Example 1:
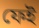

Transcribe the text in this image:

ফেই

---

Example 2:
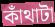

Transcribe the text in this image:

কাঁথাটা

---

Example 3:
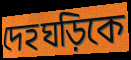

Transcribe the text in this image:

দেহঘড়িকে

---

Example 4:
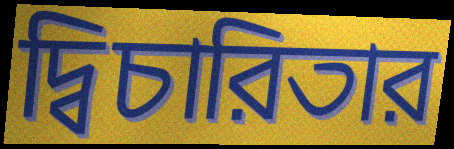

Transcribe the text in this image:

দ্বিচারিতার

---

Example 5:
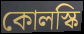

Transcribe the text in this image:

কোলস্কি